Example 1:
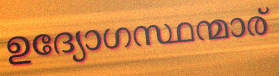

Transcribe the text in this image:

ഉദ്യോഗസ്ഥന്മാര്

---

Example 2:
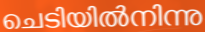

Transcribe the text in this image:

ചെടിയിൽനിന്നു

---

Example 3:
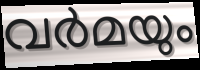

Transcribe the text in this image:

വർമയും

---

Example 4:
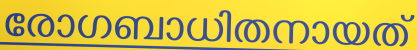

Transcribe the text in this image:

രോഗബാധിതനായത്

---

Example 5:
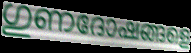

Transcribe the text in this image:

ഗുണദോഷങ്ങളെ